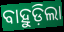
ବାହୁଡ଼ିଲା